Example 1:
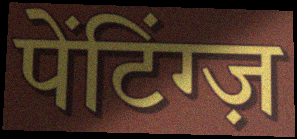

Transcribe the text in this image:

पेंटिंग्ज़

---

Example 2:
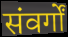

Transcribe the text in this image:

संवर्गों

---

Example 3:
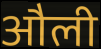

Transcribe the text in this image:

औली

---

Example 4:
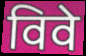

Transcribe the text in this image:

विवे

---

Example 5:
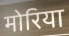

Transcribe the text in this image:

मोरिया